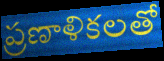
ప్రణాళికలతో